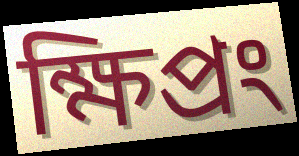
ক্ষিপ্রং